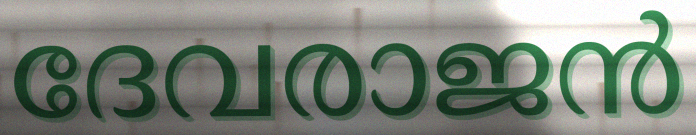
ദേവരാജൻ